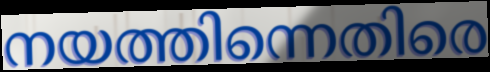
നയത്തിന്നെതിരെ